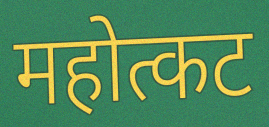
महोत्कट